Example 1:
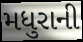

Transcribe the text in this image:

મધુરાની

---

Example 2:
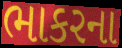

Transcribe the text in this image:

ભાકરના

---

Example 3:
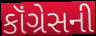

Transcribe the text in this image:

કૉંગ્રેસની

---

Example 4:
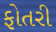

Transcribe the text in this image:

ફોતરી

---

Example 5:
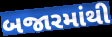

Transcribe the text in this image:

બજારમાંથી